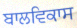
ਬਾਲਵਿਕਾਸ